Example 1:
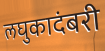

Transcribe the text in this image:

लघुकादंबरी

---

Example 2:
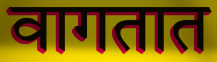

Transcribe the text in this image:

वागतात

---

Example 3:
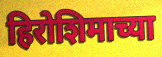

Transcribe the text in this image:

हिरोशिमाच्या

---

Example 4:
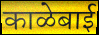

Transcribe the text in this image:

काळेबाई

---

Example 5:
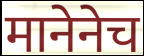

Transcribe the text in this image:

मानेनेच